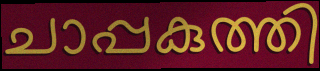
ചാപ്പകുത്തി